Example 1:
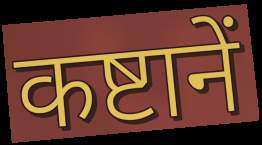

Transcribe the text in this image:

कष्टानें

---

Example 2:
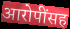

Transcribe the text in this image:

आरोपींसह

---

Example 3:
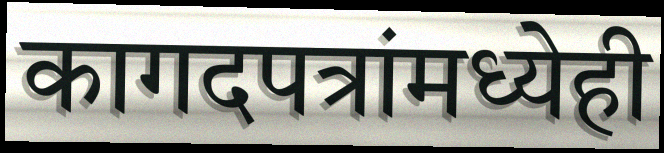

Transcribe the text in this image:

कागदपत्रांमध्येही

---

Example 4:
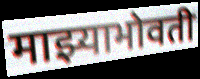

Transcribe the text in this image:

माझ्याभोवती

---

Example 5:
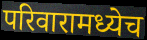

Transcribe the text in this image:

परिवारामध्येच